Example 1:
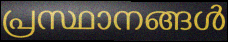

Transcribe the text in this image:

പ്രസ്ഥാനങ്ങൾ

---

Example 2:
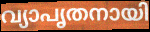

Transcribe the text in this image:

വ്യാപൃതനായി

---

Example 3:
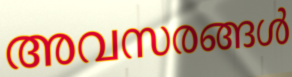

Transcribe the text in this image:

അവസരങ്ങൾ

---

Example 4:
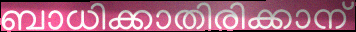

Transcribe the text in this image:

ബാധിക്കാതിരിക്കാന്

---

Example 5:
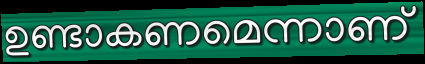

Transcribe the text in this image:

ഉണ്ടാകണമെന്നാണ്